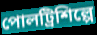
পোলট্রিশিল্পে